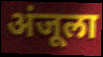
अंजूला